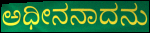
ಅಧೀನನಾದನು